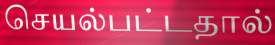
செயல்பட்டதால்